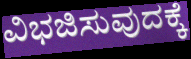
ವಿಭಜಿಸುವುದಕ್ಕೆ